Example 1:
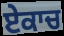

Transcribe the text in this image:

ਏਕਾਚ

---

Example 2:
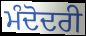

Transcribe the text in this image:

ਮੰਦੋਦਰੀ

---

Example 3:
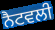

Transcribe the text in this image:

ਨੈਟਵਲੀ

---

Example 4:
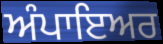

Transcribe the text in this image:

ਅੰਪਾਇਅਰ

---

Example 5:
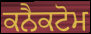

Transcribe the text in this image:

ਕਨੈਕਟੋਮ